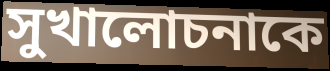
সুখালোচনাকে